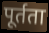
पूर्तता